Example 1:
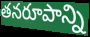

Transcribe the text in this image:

తనరూపాన్ని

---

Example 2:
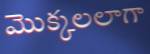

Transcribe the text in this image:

మొక్కలలాగా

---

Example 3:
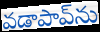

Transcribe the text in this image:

వడాపావ్‌ను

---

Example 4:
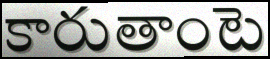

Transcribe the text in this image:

కారుతాంటె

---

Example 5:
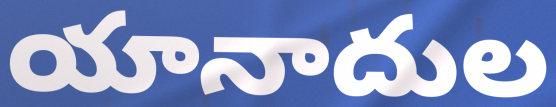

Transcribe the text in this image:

యానాదుల